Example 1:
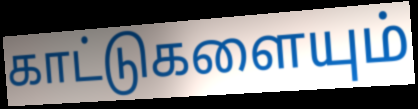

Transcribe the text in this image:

காட்டுகளையும்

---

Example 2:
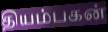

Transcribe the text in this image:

தியம்பகன்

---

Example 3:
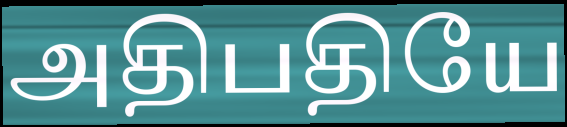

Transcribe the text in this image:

அதிபதியே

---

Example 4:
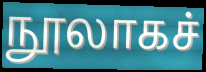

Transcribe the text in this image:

நூலாகச்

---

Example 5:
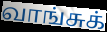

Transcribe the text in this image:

வாங்சுக்